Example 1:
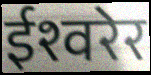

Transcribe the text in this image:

ईश्वरेर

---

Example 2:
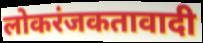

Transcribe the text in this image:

लोकरंजकतावादी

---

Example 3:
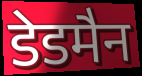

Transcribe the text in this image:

डेडमैन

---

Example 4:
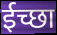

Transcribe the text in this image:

ईच्छा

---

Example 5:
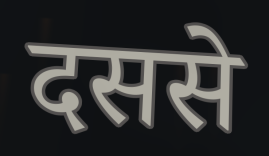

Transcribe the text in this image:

दससे